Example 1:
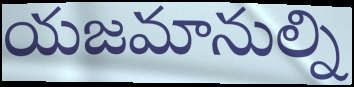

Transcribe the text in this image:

యజమానుల్ని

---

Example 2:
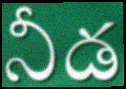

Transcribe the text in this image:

నీడ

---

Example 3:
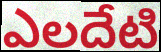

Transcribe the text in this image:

ఎలదేటి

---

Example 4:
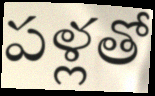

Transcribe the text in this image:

పళ్లతో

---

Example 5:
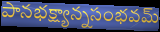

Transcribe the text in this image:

పానభక్ష్యాన్నసంభవమ్